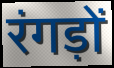
रंगड़ों